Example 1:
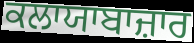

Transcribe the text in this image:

ਕਲਾਯਾਬਾਜ਼ਾਰ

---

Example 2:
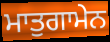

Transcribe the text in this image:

ਮਾਤੁਗਾਮੇਨ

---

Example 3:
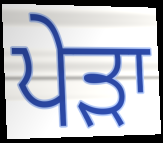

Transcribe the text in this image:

ਪੇੜਾ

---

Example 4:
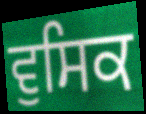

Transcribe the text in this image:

ਵੁਸਿਕ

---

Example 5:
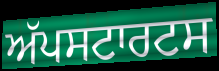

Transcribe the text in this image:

ਅੱਪਸਟਾਰਟਸ